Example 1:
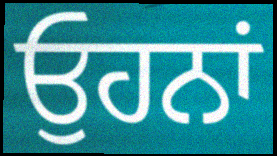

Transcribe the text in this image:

ਓੁਹਨਾਂ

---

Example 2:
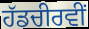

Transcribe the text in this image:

ਹੱਡਚੀਰਵੀਂ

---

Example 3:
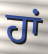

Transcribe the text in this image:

ਹਾਂ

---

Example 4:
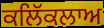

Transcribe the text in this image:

ਕਲਿੱਕਲਾਅ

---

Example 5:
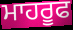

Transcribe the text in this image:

ਮਾਹਰੂਫ